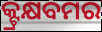
କ୍ଟ୍ରକ୍ଷବମର